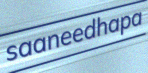
saaneedhapa